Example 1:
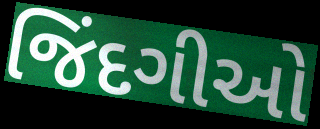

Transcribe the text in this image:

જિંદગીઓ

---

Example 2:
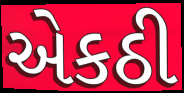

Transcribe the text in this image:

એકઠી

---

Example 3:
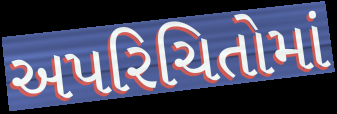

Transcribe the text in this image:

અપરિચિતોમાં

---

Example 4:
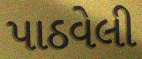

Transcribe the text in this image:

પાઠવેલી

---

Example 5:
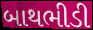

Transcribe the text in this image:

બાથભીડી